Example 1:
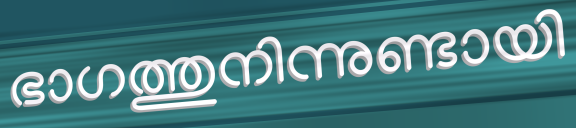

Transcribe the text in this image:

ഭാഗത്തുനിന്നുണ്ടായി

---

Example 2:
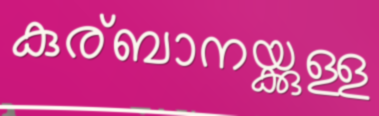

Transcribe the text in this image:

കുര്ബാനയ്ക്കുള്ള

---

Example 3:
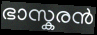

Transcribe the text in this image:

ഭാസ്കരൻ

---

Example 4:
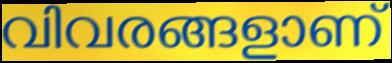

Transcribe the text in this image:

വിവരങ്ങളാണ്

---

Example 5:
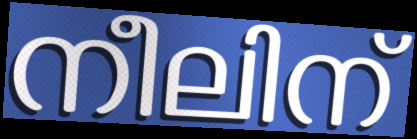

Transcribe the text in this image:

നീലിന്